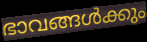
ഭാവങ്ങൾക്കും